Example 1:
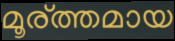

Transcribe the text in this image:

മൂര്ത്തമായ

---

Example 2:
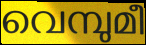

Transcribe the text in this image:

വെമ്പുമീ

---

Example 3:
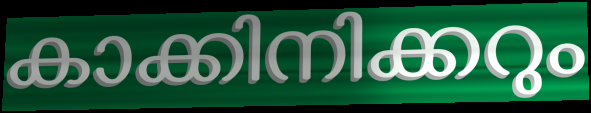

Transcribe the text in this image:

കാക്കിനിക്കറും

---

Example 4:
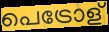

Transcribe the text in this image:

പെട്രോള്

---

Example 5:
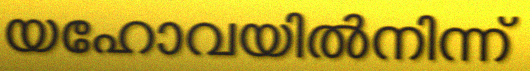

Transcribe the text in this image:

യഹോവയിൽനിന്ന്